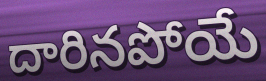
దారినపోయే